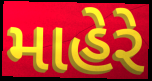
માહેરે